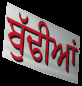
ਬੁੱਢੀਆਂ